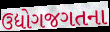
ઉદ્યોગજગતના